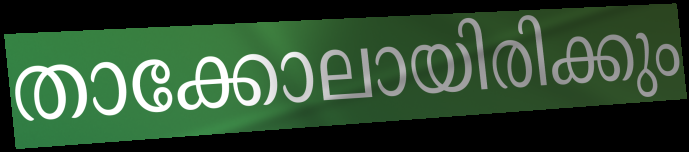
താക്കോലായിരിക്കും